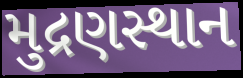
મુદ્રણસ્થાન